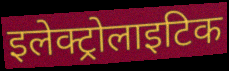
इलेक्ट्रोलाइटिक